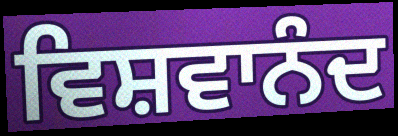
ਵਿਸ਼ਵਾਨੰਦ